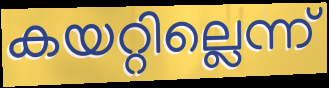
കയറ്റില്ലെന്ന്